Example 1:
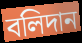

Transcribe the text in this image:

বলিদান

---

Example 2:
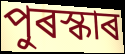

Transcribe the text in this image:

পুৰস্কাৰ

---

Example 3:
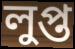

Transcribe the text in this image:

লুপ্ত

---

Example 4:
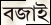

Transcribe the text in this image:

বজাই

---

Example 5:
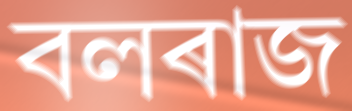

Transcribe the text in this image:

বলৰাজ